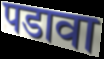
पडावा